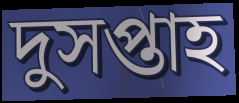
দুসপ্তাহ